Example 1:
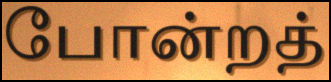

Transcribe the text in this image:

போன்றத்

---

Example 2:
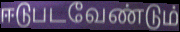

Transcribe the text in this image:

ஈடுபடவேண்டும்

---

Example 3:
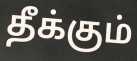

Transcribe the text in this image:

தீக்கும்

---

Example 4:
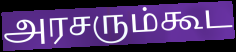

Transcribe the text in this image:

அரசரும்கூட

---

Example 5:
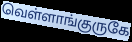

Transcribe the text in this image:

வெள்ளாங்குருகே